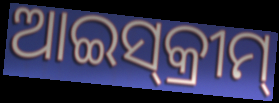
ଆଇସ୍‌କ୍ରୀମ୍